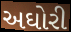
અઘોરી